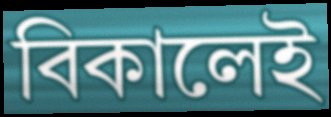
বিকালেই